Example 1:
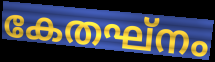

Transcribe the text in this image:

കേതഘ്നം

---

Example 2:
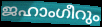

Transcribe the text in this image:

ജഹാംഗീറും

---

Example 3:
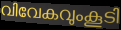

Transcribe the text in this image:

വിവേകവുംകൂടി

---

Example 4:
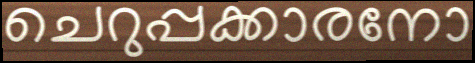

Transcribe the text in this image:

ചെറുപ്പക്കാരനോ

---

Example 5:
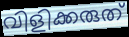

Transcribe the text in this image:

വിളിക്കരുത്